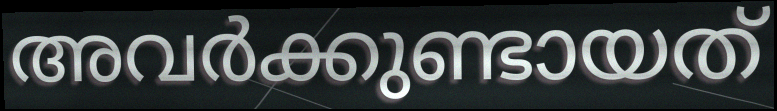
അവർക്കുണ്ടായത്